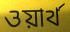
ওয়ার্থ